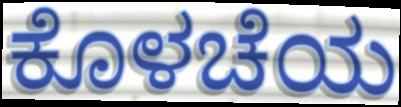
ಕೊಳಚೆಯ